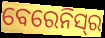
ବେରେନିସ୍‌ର